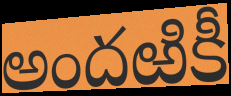
అందఱికీ